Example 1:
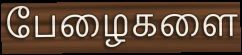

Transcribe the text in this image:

பேழைகளை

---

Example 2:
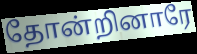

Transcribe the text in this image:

தோன்றினாரே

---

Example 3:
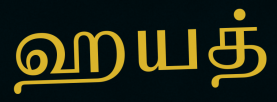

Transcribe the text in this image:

ஹயத்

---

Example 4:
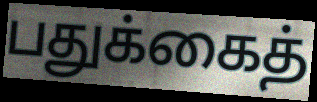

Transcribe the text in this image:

பதுக்கைத்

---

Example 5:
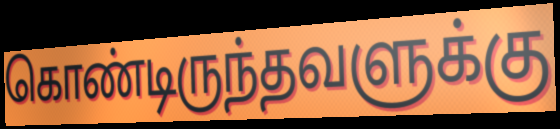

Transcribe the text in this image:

கொண்டிருந்தவளுக்கு